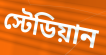
স্টেডিয়ান